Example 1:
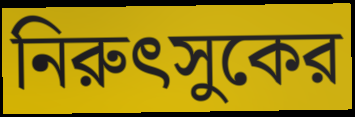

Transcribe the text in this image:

নিরুৎসুকের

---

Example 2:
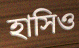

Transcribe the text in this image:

হাসিও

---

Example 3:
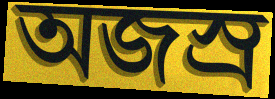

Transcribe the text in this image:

অজস্র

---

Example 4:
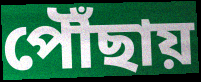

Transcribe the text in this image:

পৌঁছায়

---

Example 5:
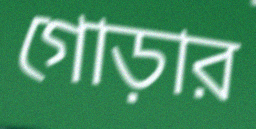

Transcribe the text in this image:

গোড়ার